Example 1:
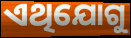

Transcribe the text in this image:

ଏଥିଯୋଗୁ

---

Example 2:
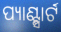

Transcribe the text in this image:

ପ୍ୟାଣ୍ଟ୍ସାର୍ଟ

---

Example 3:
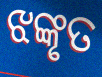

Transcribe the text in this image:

ଝଙ୍କୃତ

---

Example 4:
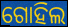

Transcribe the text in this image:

ଗୋହିଲ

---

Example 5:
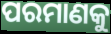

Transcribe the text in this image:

ପରମାଣକୁ